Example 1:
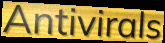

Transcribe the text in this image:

Antivirals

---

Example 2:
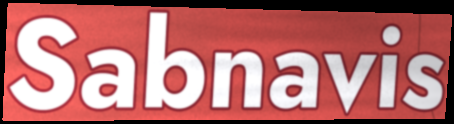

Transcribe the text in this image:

Sabnavis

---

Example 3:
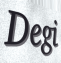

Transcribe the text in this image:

Degi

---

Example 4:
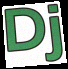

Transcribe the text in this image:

Dj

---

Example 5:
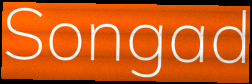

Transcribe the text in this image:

Songad